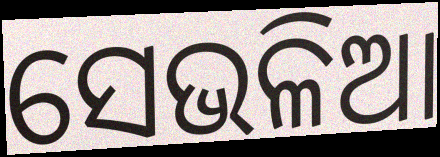
ସେଭଳିଆ